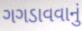
ગગડાવવાનું